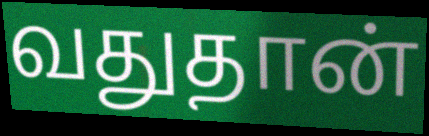
வதுதான்